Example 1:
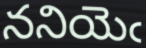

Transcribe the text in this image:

ననియెఁ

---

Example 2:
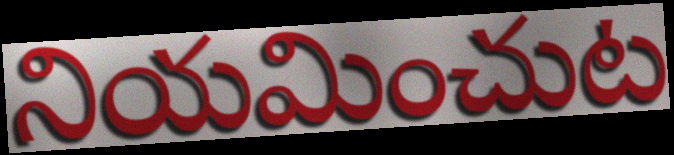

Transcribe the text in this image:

నియమించుట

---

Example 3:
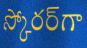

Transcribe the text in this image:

స్కోరర్‌గా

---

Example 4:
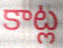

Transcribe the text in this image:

కాట్ల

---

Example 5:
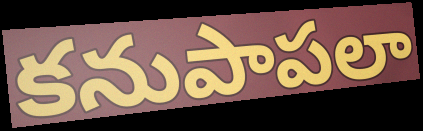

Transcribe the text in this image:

కనుపాపలా